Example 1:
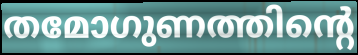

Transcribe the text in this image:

തമോഗുണത്തിന്റെ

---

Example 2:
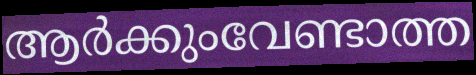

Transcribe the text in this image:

ആർക്കുംവേണ്ടാത്ത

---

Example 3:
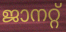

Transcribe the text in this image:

ജാനറ്റ്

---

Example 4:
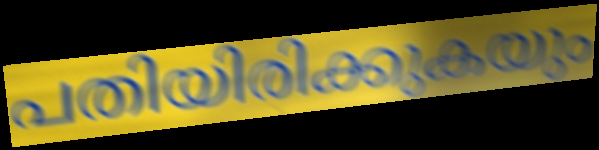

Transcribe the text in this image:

പതിയിരിക്കുകയും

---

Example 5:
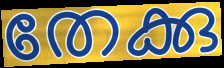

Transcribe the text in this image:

തേക്കു